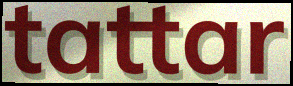
tattar